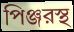
পিঞ্জরস্থ